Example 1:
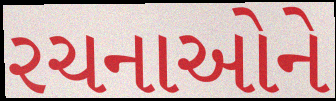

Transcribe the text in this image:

રચનાઓને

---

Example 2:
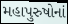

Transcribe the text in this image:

મહાપુરુષોનાં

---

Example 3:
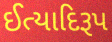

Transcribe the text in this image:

ઈત્યાદિરૂપ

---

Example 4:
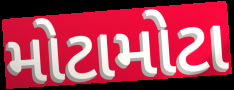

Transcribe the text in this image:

મોટામોટા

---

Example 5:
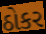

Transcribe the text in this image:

ઠોકર